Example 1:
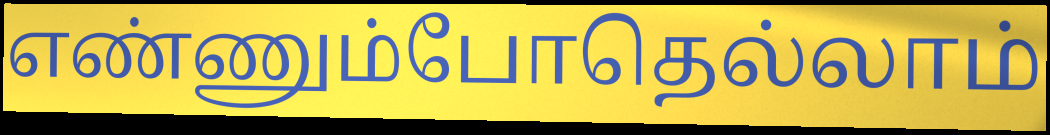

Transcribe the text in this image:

எண்ணும்போதெல்லாம்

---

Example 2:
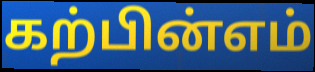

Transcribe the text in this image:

கற்பின்எம்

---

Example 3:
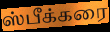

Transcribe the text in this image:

ஸ்பீக்கரை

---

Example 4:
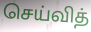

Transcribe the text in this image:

செய்வித்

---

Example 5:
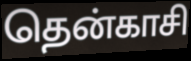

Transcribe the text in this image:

தென்காசி